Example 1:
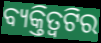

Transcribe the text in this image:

ବ୍ୟକ୍ତିତ୍ୱଟିର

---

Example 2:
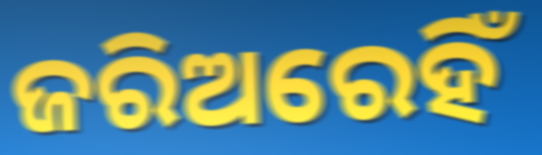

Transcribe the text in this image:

ଜରିଅରେହିଁ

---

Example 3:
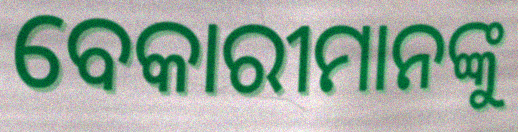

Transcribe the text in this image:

ବେକାରୀମାନଙ୍କୁ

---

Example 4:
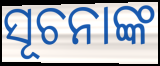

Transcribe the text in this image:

ସୂଚନାଙ୍କ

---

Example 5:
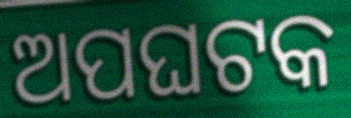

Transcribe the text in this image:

ଅପଘଟକ